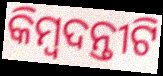
କିମ୍ୱଦନ୍ତୀଟି